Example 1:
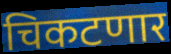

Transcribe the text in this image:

चिकटणार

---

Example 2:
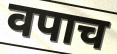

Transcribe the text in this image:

वपाच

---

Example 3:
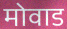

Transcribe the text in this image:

मोवाड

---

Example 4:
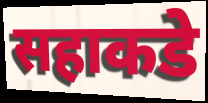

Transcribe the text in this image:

सहाकडे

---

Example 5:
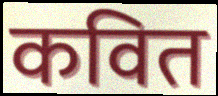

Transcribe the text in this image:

कवित